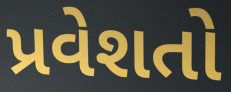
પ્રવેશતો